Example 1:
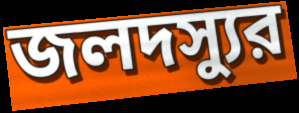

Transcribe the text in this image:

জলদস্যুর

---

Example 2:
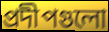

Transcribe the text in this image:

প্রদীপগুলো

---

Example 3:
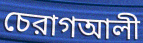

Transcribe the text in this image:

চেরাগআলী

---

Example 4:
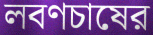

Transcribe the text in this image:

লবণচাষের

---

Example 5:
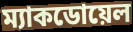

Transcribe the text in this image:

ম্যাকডোয়েল